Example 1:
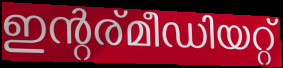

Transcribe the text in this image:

ഇന്റര്മീഡിയറ്റ്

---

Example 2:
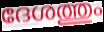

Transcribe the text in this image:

ദേശത്തും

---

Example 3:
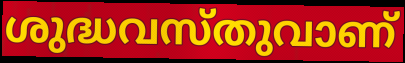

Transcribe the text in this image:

ശുദ്ധവസ്തുവാണ്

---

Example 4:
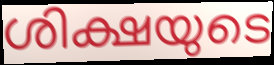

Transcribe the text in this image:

ശിക്ഷയുടെ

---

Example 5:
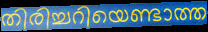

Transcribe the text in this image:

തിരിച്ചറിയെണ്ടാത്ത